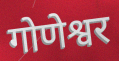
गोणेश्वर